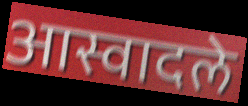
आस्वादले